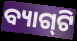
ବ୍ୟାଗ୍‌ଟି